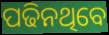
ପଢିନଥିବେ